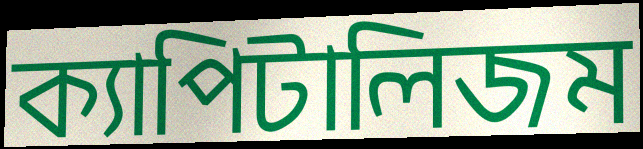
ক্যাপিটালিজম